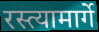
रस्त्यामार्गे